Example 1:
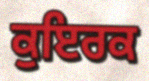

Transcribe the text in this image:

ਕੁਇਰਕ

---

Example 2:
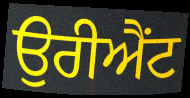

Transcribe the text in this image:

ਉਰੀਐਂਟ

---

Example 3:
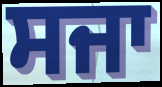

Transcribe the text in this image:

ਸਜਾ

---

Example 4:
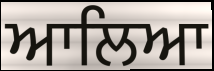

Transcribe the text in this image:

ਆਲਿਆ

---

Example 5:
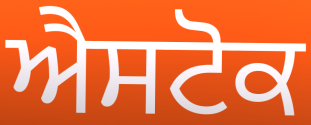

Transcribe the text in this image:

ਐਸਟੋਕ